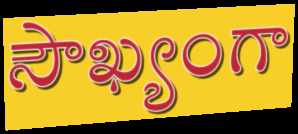
సౌఖ్యంగా